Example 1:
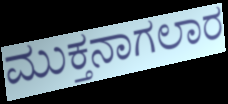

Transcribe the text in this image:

ಮುಕ್ತನಾಗಲಾರ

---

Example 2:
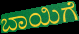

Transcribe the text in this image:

ಬಾಯಿಗೆ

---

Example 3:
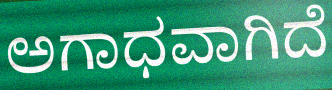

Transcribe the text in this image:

ಅಗಾಧವಾಗಿದೆ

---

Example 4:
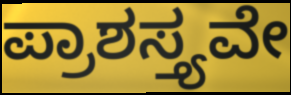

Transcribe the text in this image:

ಪ್ರಾಶಸ್ತ್ಯವೇ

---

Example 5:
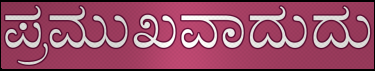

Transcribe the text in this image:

ಪ್ರಮುಖವಾದುದು